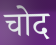
चोद